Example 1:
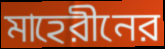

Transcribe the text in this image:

মাহেরীনের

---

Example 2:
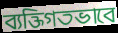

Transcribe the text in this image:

ব্যক্তিগতভাবে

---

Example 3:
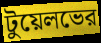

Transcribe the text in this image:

টুয়েলভের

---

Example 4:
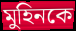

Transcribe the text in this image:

মুহিনকে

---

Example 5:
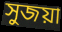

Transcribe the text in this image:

সুজয়া